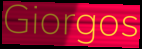
Giorgos